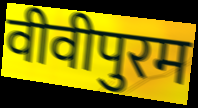
वीवीपुरम